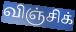
விஞ்சிக்